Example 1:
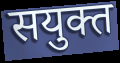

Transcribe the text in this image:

सयुक्त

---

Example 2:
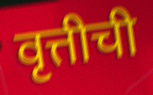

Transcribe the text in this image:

वृत्तीची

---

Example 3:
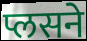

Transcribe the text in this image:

प्लसने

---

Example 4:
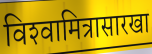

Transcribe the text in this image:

विश्वामित्रासारखा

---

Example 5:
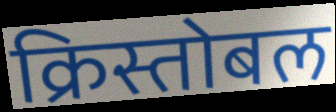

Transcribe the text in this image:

क्रिस्तोबल